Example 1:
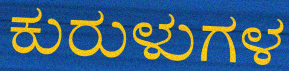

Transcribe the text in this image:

ಕುರುಳುಗಳ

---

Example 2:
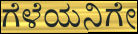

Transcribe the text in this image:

ಗೆಳೆಯನಿಗೇ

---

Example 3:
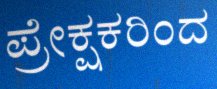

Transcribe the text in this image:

ಪ್ರೇಕ್ಷಕರಿಂದ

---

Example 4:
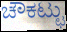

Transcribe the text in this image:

ಚೌಕಟ್ಟು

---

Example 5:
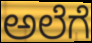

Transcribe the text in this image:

ಅಲೆಗೆ